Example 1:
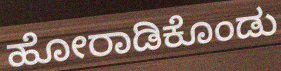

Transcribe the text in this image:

ಹೋರಾಡಿಕೊಂಡು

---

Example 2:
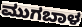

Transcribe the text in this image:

ಮುಗಬಾಳ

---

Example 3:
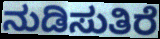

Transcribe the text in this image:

ನುಡಿಸುತಿರೆ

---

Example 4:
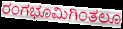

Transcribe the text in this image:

ರಂಗಭೂಮಿಗಿಂತಲೂ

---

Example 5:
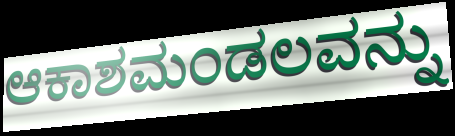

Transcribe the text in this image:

ಆಕಾಶಮಂಡಲವನ್ನು